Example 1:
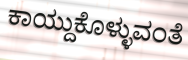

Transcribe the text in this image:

ಕಾಯ್ದುಕೊಳ್ಳುವಂತೆ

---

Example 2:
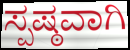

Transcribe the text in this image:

ಸ್ಪಷ್ಠವಾಗಿ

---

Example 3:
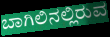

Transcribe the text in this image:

ಬಾಗಿಲಿನಲ್ಲಿರುವ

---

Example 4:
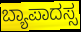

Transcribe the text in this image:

ಬ್ಯಾಪಾದಸ್ಸ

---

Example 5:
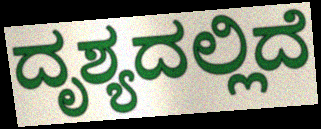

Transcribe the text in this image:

ದೃಶ್ಯದಲ್ಲಿದೆ